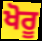
ਖੋਰੂ